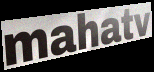
mahatv